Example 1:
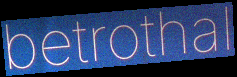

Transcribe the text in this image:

betrothal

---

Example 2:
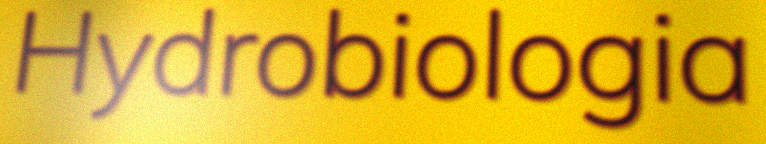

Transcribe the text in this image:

Hydrobiologia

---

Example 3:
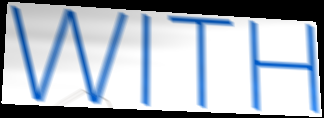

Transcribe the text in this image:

WITH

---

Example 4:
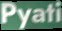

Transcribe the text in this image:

Pyati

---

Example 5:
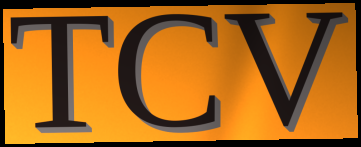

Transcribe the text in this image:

TCV